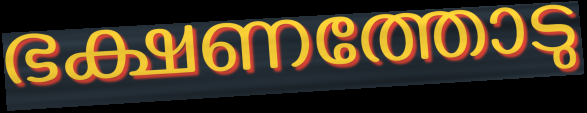
ഭക്ഷണത്തോടു